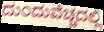
ದುಂದುವೆಚ್ಚದಲ್ಲಿ